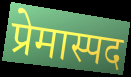
प्रेमास्पद